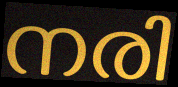
നരി